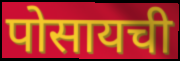
पोसायची